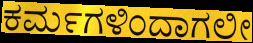
ಕರ್ಮಗಳಿಂದಾಗಲೀ